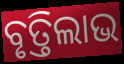
ବୃତ୍ତିଲାଭ